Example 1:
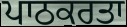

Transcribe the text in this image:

ਪਾਠਕਰਤਾ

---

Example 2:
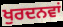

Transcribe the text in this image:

ਖੁਰਦਨਵਾਂ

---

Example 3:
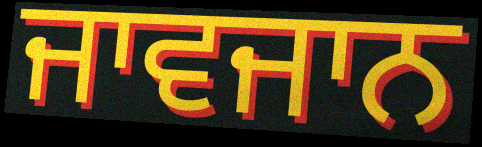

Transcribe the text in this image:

ਜਾਵਜਾਨ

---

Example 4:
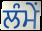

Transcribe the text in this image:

ਲੰਮੇਂ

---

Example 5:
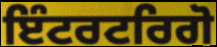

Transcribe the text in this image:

ਇੰਟਰਟਰਿਗੋ